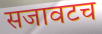
सजावटच